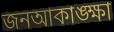
জনআকাঙ্ক্ষা